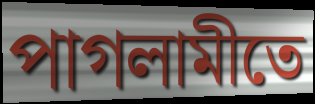
পাগলামীতে